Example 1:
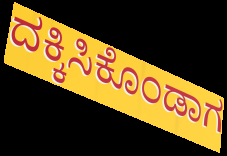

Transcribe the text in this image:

ದಕ್ಕಿಸಿಕೊಂಡಾಗ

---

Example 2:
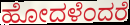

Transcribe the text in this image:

ಹೋದಳೆಂದರೆ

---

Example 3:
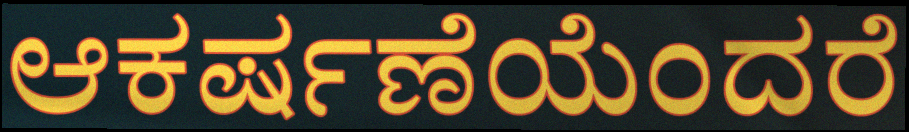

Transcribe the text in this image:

ಆಕರ್ಷಣೆಯೆಂದರೆ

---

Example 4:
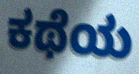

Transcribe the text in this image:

ಕಥೆಯ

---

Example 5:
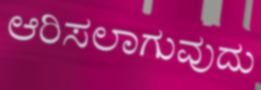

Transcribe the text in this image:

ಆರಿಸಲಾಗುವುದು